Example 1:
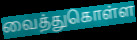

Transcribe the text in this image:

வைத்துகொள்ள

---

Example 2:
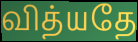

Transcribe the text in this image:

வித்யதே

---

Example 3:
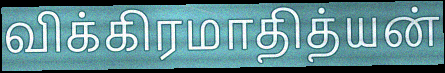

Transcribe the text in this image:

விக்கிரமாதித்யன்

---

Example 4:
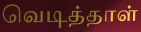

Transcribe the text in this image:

வெடித்தாள்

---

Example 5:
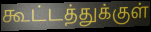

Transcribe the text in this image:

கூட்டத்துக்குள்